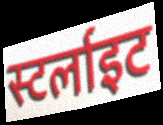
स्टर्लाइट